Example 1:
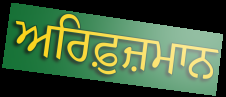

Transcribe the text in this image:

ਅਰਿਫ਼ੁਜ਼ਮਾਨ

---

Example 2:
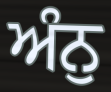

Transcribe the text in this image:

ਅੰਨੁ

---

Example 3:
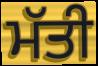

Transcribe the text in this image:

ਮੱਤੀ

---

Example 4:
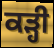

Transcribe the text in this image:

ਕੜ੍ਹੀ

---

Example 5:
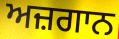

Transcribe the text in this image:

ਅਜ਼ਗਾਨ